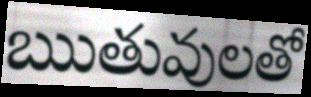
ఋతువులతో